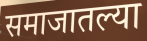
समाजातल्या